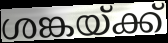
ശങ്കയ്ക്ക്